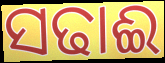
ସଢାଈ